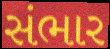
સંભાર